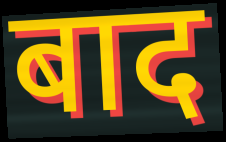
बाद